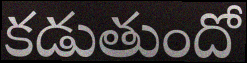
కడుతుందో